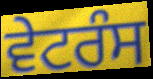
ਵੇਟਰੰਸ